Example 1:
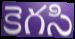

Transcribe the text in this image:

కెగసి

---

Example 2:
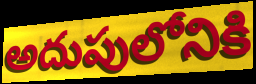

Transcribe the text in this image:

అదుపులోనికి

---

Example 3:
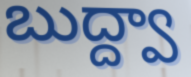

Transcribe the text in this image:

బుద్ద్వా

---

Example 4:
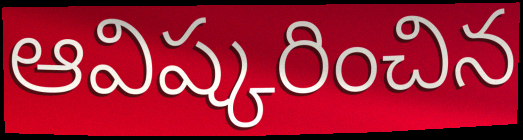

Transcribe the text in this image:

ఆవిష్కరించిన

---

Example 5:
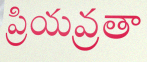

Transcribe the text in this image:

ప్రియవ్రతా